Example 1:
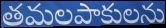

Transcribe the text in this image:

తమలపాకులను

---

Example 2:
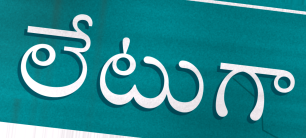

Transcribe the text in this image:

లేటుగా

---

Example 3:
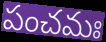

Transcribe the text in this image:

పంచమః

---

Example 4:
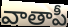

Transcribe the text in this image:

వాతాపీ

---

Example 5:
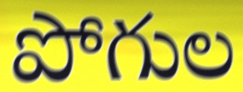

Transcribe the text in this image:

పోగుల